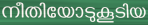
നീതിയോടുകൂടിയ